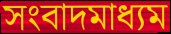
সংবাদমাধ্যম